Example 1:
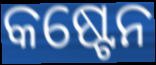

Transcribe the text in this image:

କଷ୍ଟେନ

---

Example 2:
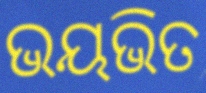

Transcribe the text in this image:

ଭୟଭିତ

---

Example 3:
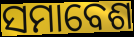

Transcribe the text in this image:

ସମାବେଶ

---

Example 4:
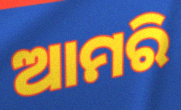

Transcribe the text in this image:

ଆମରି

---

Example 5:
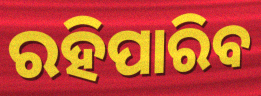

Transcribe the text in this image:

ରହିପାରିବ